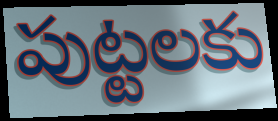
పుట్టలకు